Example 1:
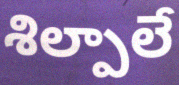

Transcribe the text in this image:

శిల్పాలే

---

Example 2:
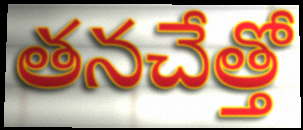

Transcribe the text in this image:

తనచేత్తో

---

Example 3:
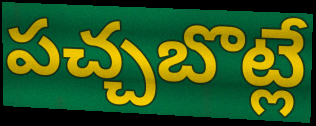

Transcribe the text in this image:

పచ్చబొట్లే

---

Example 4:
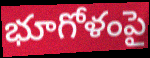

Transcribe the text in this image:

భూగోళంపై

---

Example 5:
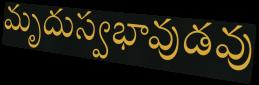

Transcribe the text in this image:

మృదుస్వభావుడవు